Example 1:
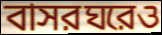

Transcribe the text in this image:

বাসরঘরেও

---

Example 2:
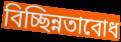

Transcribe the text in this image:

বিচ্ছিন্নতাবোধ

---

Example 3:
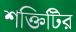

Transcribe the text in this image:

শক্তিটির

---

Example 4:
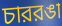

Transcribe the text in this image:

চাররঙা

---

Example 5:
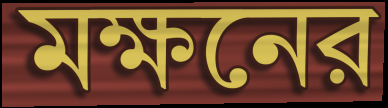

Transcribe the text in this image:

মক্ষনের